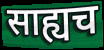
साह्यच